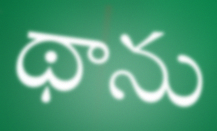
థాను